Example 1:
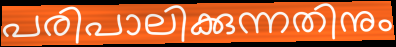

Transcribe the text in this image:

പരിപാലിക്കുന്നതിനും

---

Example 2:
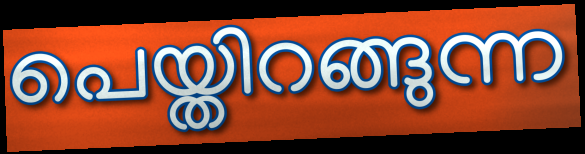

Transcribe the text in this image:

പെയ്തിറങ്ങുന്ന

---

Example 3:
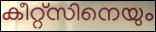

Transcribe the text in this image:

കീറ്റ്സിനെയും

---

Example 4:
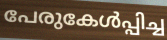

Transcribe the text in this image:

പേരുകേൾപ്പിച്ച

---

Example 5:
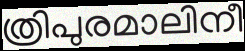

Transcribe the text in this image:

ത്രിപുരമാലിനീ